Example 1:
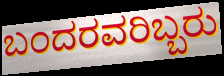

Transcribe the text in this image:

ಬಂದರವರಿಬ್ಬರು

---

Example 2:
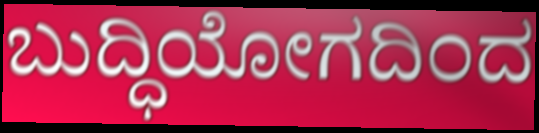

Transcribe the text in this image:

ಬುದ್ಧಿಯೋಗದಿಂದ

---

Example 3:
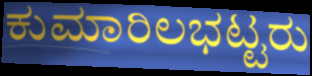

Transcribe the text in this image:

ಕುಮಾರಿಲಭಟ್ಟರು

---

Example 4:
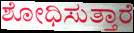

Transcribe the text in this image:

ಶೋಧಿಸುತ್ತಾರೆ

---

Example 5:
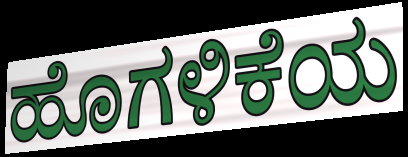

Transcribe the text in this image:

ಹೊಗಳಿಕೆಯ